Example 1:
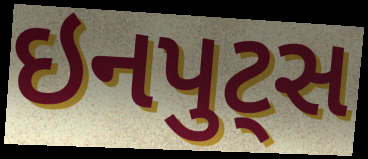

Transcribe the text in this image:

ઇનપુટ્સ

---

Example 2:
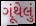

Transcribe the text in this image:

ગૂંથેલું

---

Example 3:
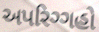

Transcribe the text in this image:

અપરિગ્ગહો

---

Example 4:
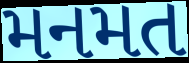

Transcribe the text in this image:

મનમત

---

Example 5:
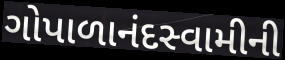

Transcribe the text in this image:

ગોપાળાનંદસ્વામીની